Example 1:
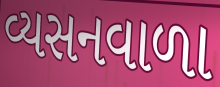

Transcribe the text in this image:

વ્યસનવાળા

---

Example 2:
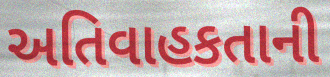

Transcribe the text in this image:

અતિવાહકતાની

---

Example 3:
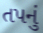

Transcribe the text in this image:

તપનું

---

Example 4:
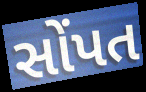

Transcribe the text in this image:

સોંપત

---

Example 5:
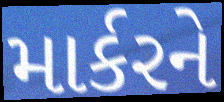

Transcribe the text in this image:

માર્કરને